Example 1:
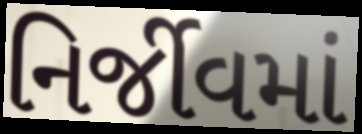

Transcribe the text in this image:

નિર્જીવમાં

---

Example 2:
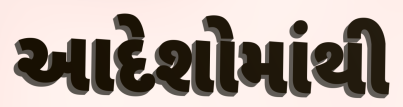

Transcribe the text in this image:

આદેશોમાંથી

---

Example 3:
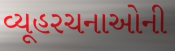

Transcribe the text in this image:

વ્યૂહરચનાઓની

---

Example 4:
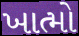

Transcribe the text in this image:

ખાત્મો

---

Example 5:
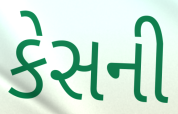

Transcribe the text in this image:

કેસની